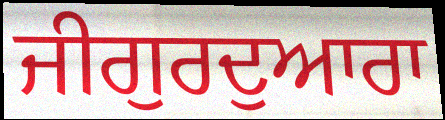
ਜੀਗੁਰਦੁਆਰਾ